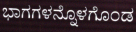
ಭಾಗಗಳನ್ನೊಳಗೊಂಡ